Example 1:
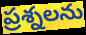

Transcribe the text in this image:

ప్రశ్నలను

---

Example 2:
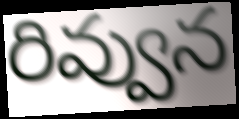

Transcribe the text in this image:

రివ్వున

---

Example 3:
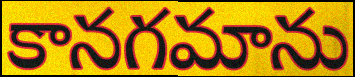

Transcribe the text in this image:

కానగమాను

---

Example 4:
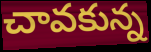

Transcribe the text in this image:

చావకున్న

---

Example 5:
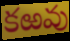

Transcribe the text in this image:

కఱవు